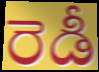
రెడీ